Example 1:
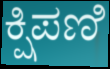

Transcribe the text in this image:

ಕ್ಷಿಪಣಿ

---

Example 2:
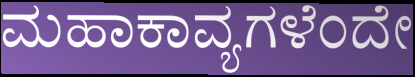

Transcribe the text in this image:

ಮಹಾಕಾವ್ಯಗಳೆಂದೇ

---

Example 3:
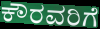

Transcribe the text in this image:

ಕೌರವರಿಗೆ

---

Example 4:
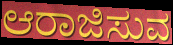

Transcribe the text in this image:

ಆರಾಜಿಸುವ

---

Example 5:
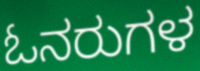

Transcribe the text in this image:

ಓನರುಗಳ